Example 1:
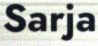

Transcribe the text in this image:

Sarja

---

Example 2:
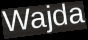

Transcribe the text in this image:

Wajda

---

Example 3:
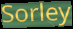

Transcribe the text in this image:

Sorley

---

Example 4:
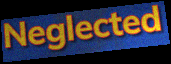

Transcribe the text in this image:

Neglected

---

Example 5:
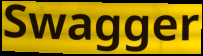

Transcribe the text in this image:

Swagger